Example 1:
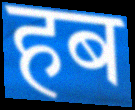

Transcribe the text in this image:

हब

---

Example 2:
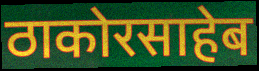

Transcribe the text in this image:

ठाकोरसाहेब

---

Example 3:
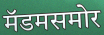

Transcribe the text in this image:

मॅडमसमोर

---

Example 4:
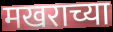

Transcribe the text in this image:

मखराच्या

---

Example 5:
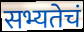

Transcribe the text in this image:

सभ्यतेचं